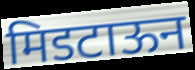
मिडटाऊन